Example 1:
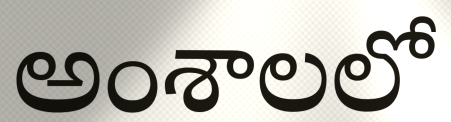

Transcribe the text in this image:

అంశాలలో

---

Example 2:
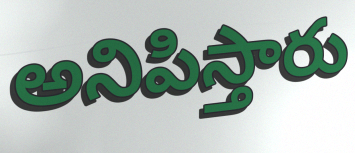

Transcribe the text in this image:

అనిపిస్తారు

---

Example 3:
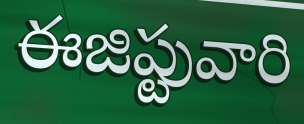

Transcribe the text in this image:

ఈజిప్టువారి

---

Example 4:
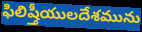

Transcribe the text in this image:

ఫిలిష్తీయులదేశమును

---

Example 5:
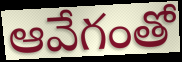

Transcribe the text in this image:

ఆవేగంతో